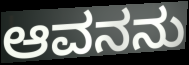
ಆವನನು